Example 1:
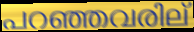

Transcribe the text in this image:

പറഞ്ഞവരില്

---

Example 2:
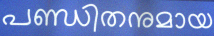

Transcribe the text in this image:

പണ്ഡിതനുമായ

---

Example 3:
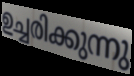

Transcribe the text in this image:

ഉച്ചരിക്കുന്നു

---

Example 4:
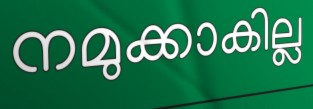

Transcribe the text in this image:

നമുക്കാകില്ല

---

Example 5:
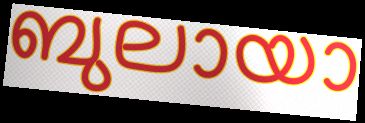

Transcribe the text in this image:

ബുലായാ